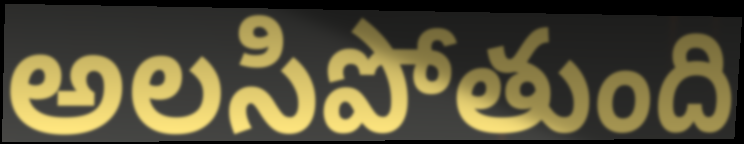
అలసిపోతుంది